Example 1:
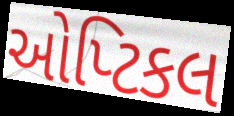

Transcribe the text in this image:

ઓપ્ટિકલ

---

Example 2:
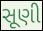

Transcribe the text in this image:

સૂણી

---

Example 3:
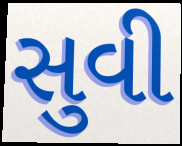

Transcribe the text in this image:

સુવી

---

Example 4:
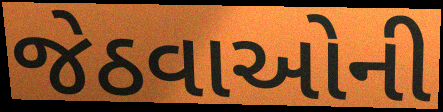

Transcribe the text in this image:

જેઠવાઓની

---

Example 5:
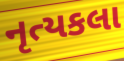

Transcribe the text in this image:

નૃત્યકલા